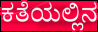
ಕತೆಯಲ್ಲಿನ